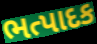
ભત્પાદક